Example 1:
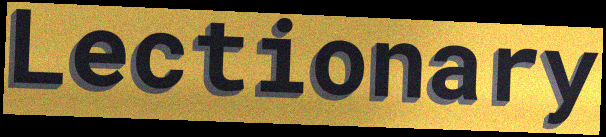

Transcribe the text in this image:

Lectionary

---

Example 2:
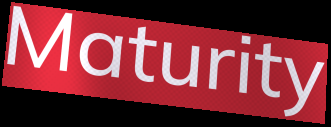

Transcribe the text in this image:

Maturity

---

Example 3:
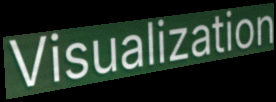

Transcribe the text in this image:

Visualization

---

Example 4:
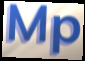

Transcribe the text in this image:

Mp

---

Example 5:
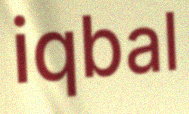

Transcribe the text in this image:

iqbal